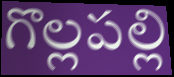
గొల్లపల్లి